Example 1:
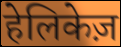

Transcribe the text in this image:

हेलिकेज़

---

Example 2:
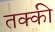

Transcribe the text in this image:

तक्की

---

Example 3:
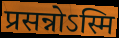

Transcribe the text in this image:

प्रसन्नोऽस्मि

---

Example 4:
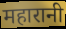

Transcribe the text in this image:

महारानी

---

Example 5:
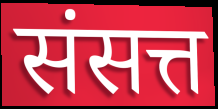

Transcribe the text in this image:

संसत्त